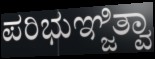
ಪರಿಭುಞ್ಜಿತ್ವಾ